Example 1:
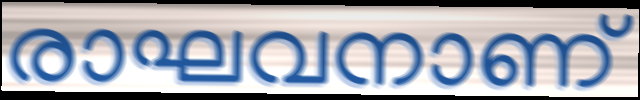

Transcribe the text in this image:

രാഘവനാണ്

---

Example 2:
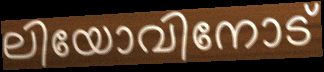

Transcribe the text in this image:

ലിയോവിനോട്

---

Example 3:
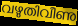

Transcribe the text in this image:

വഴുതിവീണു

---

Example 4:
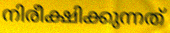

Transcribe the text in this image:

നിരീക്ഷിക്കുന്നത്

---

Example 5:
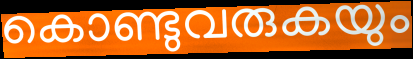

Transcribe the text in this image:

കൊണ്ടുവരുകയും